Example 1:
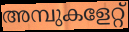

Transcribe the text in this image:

അമ്പുകളേറ്റ്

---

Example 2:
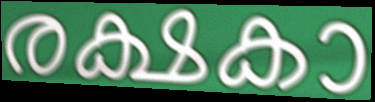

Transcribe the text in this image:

രക്ഷകാ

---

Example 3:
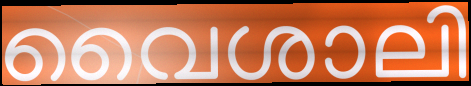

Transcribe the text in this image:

വൈശാലി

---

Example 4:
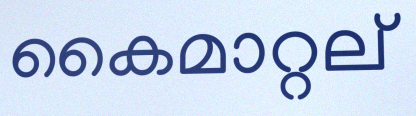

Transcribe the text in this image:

കൈമാറ്റല്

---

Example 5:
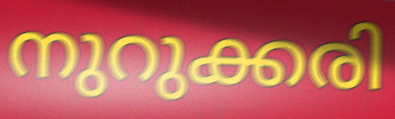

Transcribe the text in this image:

നുറുക്കരി